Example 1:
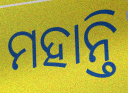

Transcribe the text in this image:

ମହାନ୍ତି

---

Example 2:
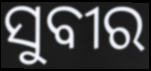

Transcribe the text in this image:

ସୁବୀର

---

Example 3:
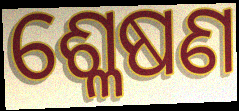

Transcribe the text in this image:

ଶ୍ଳେଷଣ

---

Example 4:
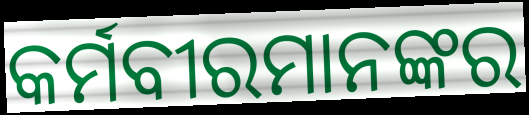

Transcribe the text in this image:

କର୍ମବୀରମାନଙ୍କର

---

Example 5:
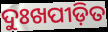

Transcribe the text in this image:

ଦୁଃଖପୀଡ଼ିତ